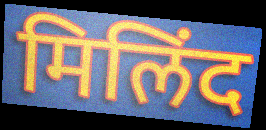
मिलिंद